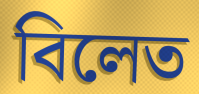
বিলেত